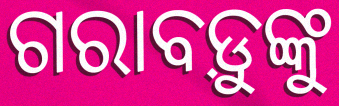
ଗରାବଡ଼ୁଙ୍କୁ